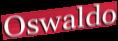
Oswaldo